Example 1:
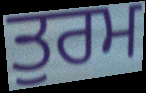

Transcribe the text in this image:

ਤੁਰਮ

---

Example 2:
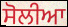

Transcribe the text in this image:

ਸੋਲੀਆ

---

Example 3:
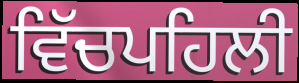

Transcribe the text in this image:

ਵਿੱਚਪਹਿਲੀ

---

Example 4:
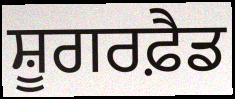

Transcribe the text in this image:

ਸ਼ੂਗਰਫ਼ੈਡ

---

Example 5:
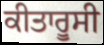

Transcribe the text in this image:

ਕੀਤਾਰੂਸੀ